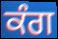
ਕੰਗ